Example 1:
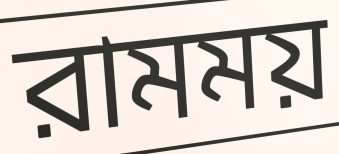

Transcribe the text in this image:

রামময়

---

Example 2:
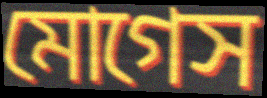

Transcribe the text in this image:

মোগেস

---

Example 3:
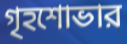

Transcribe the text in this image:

গৃহশোভার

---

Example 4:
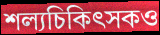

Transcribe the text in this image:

শল্যচিকিৎসকও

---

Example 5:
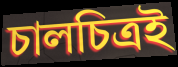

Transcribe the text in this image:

চালচিত্রই